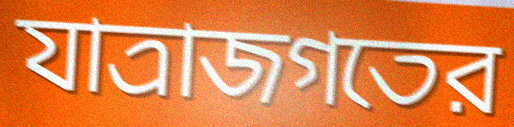
যাত্রাজগতের